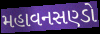
મહાવનસણ્ડો